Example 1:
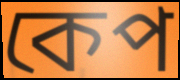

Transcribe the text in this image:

কেপ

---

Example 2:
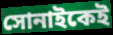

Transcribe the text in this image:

সোনাইকেই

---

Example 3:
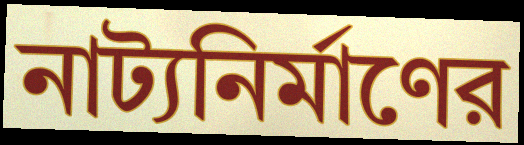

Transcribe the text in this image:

নাট্যনির্মাণের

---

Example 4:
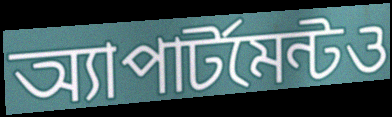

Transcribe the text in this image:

অ্যাপার্টমেন্টও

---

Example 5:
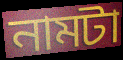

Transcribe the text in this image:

নামটা